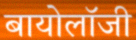
बायोलॉजी